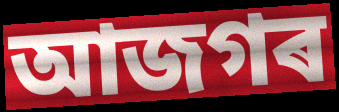
আজগৰ